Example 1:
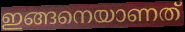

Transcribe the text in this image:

ഇങ്ങനെയാണത്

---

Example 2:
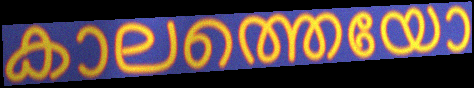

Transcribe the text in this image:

കാലത്തെയോ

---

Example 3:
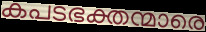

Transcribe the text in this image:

കപടഭക്തന്മാരെ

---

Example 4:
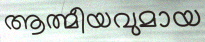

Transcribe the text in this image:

ആത്മീയവുമായ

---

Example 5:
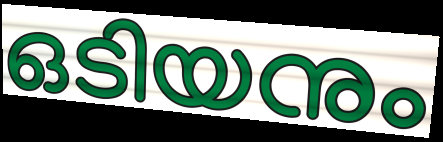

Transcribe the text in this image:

ഒടിയനും